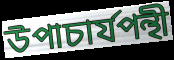
উপাচার্যপন্থী